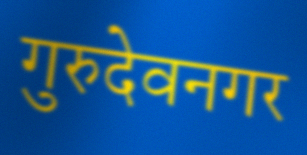
गुरुदेवनगर